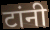
टांनी